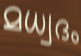
മധ്വദം